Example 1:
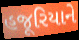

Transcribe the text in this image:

હજૂરિયાને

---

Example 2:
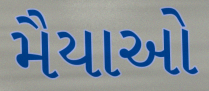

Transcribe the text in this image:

મૈયાઓ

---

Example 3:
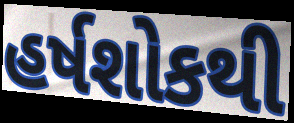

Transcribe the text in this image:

હર્ષશોકથી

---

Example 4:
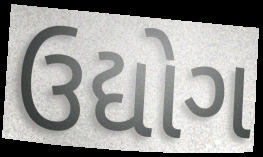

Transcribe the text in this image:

ઉદ્યોગ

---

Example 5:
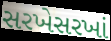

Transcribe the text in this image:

સરખેસરખાં